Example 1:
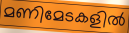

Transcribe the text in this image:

മണിമേടകളിൽ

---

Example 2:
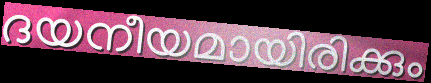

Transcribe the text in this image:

ദയനീയമായിരിക്കും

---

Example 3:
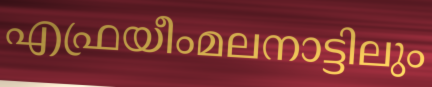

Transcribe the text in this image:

എഫ്രയീംമലനാട്ടിലും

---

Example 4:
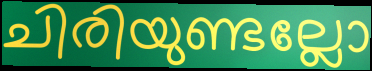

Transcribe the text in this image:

ചിരിയുണ്ടല്ലോ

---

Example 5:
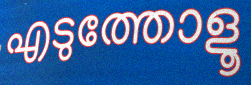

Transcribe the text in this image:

എടുത്തോളൂ